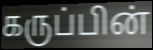
கருப்பின்